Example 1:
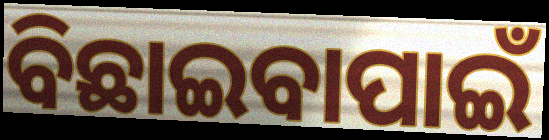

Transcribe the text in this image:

ବିଛାଇବାପାଇଁ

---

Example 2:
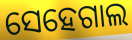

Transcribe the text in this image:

ସେହେଗାଲ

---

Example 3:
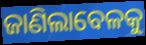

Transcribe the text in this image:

ଜାଣିଲାବେଳକୁ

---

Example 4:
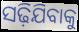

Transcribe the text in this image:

ସଢ଼ିଯିବାକୁ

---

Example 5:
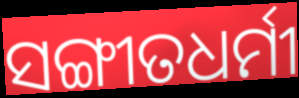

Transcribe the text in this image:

ସଙ୍ଗୀତଧର୍ମୀ